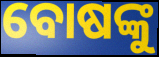
ବୋଷଙ୍କୁ